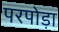
परपोड़ा